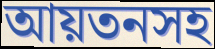
আয়তনসহ